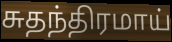
சுதந்திரமாய்